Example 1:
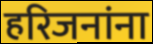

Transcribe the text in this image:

हरिजनांना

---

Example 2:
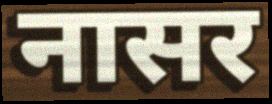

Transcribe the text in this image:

नासर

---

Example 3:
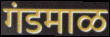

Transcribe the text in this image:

गंडमाळ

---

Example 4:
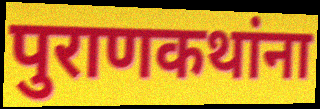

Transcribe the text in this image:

पुराणकथांना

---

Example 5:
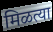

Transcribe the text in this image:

मिळत्या